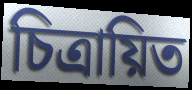
চিত্রায়িত